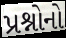
પ્રશ્નોનો